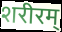
शरीरम्